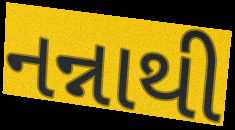
નન્નાથી